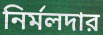
নির্মলদার